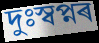
দুঃস্বপ্নৰ